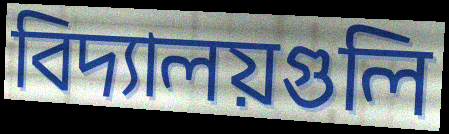
বিদ্যালয়গুলি